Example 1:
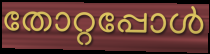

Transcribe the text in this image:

തോറ്റപ്പോൾ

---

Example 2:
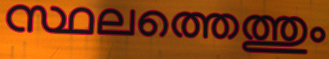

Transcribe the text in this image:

സ്ഥലത്തെത്തും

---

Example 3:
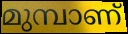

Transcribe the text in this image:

മുമ്പാണ്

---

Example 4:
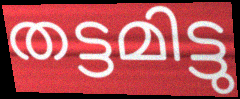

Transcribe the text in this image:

തട്ടമിട്ടു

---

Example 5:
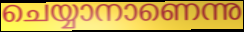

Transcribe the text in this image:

ചെയ്യാനാണെന്നു